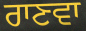
ਰਾਣਵਾ